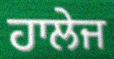
ਹਾਲੇਜ